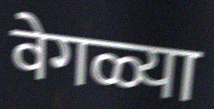
वेगळ्या